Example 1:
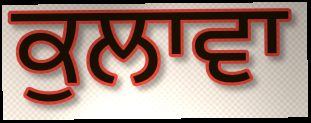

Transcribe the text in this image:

ਕੁਲਾਵਾ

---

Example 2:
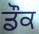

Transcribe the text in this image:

ਡੌਕ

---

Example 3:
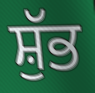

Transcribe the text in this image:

ਸ਼ੁੱਭ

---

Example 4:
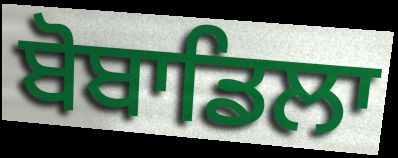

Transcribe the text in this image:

ਬੋਬਾਡਿਲਾ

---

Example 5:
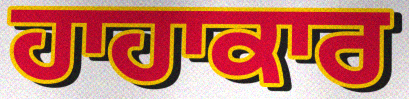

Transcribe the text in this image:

ਹਾਹਾਕਾਰ